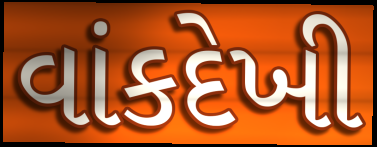
વાંકદેખી